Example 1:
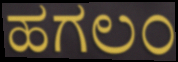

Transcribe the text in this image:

ಹಗಲಂ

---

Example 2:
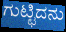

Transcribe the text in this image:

ಗುಟ್ಟಿದನು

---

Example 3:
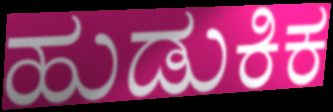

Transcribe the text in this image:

ಹುಡುಕಿಕ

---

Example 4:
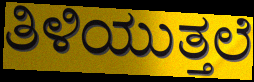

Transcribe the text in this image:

ತಿಳಿಯುತ್ತಲೆ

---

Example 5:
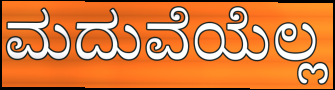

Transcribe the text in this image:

ಮದುವೆಯೆಲ್ಲ